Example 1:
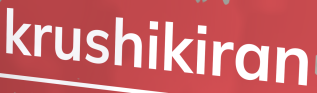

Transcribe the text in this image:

krushikiran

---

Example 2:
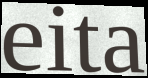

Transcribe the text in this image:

eita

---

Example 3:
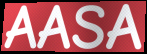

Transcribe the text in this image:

AASA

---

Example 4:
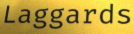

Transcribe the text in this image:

Laggards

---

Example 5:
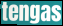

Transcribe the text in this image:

tengas